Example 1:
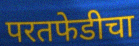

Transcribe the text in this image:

परतफेडीचा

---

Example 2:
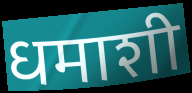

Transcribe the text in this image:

धमाशी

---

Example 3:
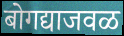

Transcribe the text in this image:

बोगद्याजवळ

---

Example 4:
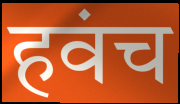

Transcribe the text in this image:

हवंच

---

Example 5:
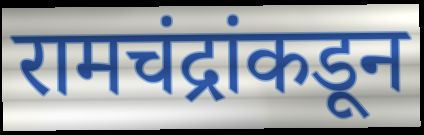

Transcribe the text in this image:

रामचंद्रांकडून